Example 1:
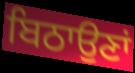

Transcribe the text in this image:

ਬਿਠਾਉਣਾਂ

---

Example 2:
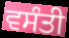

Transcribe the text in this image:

ਵਸੰਤੀ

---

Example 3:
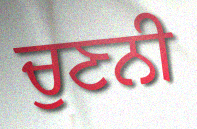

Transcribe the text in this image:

ਚੁਣਨੀ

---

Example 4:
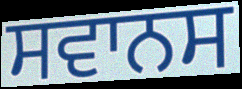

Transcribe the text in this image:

ਸਵਾਨਸ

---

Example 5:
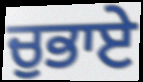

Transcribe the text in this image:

ਚੁਭਾਏ